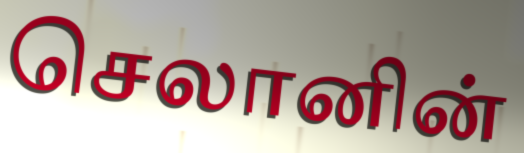
செலானின்